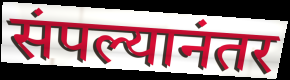
संपल्यानंतर